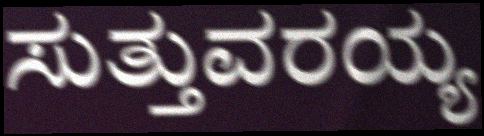
ಸುತ್ತುವರಯ್ಯ